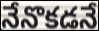
నేనొకడనే